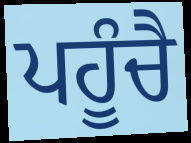
ਪਹੂੰਚੈ